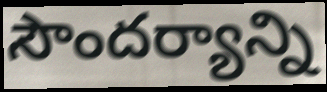
సౌందర్యాన్ని